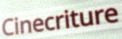
Cinecriture